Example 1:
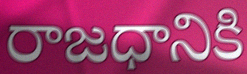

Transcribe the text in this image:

రాజధానికి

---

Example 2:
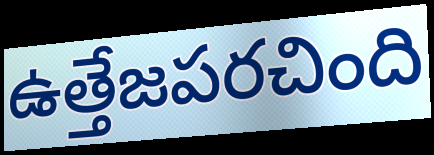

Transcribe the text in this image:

ఉత్తేజపరచింది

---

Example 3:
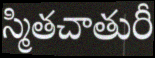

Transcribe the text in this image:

స్మితచాతురీ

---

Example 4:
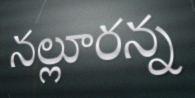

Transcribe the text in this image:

నల్లూరన్న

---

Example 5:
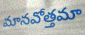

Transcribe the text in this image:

మానవోత్తమా